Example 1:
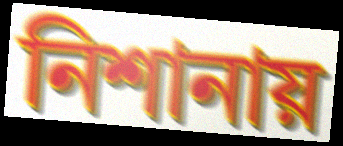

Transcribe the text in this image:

নিশানায়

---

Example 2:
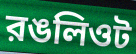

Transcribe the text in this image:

রঙলিওট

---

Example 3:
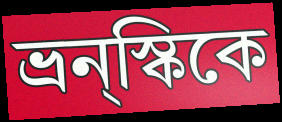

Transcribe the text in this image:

ভ্রন্‌স্কিকে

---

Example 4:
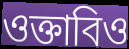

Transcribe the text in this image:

ওক্তাবিও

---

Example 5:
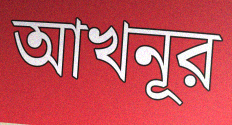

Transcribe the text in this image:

আখনূর